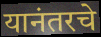
यानंतरचे